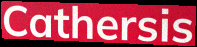
Cathersis